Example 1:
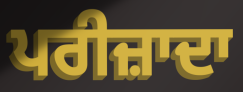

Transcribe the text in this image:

ਪਰੀਜ਼ਾਦਾ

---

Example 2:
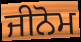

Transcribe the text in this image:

ਜੀਨੋਮ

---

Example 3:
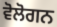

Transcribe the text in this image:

ਵੋਲੋਗਨ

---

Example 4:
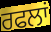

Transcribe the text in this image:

ਰਫਲਾਂ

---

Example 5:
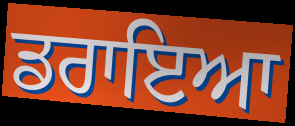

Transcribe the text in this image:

ਡਰਾਇਆ